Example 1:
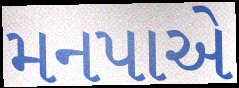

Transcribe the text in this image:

મનપાએ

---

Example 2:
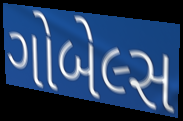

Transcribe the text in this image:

ગોબેલ્સ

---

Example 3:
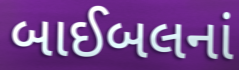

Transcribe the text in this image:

બાઈબલનાં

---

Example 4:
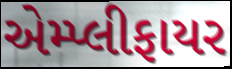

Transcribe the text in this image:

એમ્પ્લીફાયર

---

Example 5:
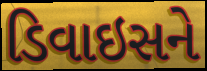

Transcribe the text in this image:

ડિવાઇસને